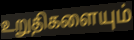
உறுதிகளையும்